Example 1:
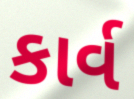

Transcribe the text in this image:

કાર્વ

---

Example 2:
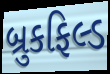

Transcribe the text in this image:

બ્રુકફિલ્ડ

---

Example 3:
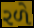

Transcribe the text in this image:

રળે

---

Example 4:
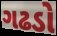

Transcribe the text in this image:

ગઢડો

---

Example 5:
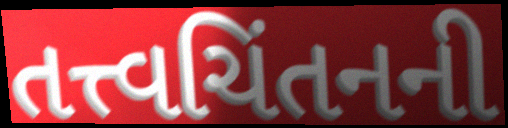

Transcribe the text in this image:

તત્ત્વચિંતનની